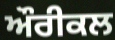
ਔਰੀਕਲ